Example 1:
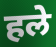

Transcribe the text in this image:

हले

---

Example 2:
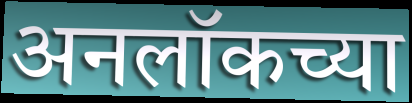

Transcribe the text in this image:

अनलॉकच्या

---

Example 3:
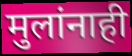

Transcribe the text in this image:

मुलांनाही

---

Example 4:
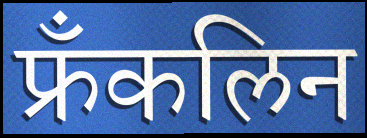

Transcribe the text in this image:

फ्रँकलिन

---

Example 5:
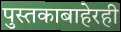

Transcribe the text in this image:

पुस्तकाबाहेरही